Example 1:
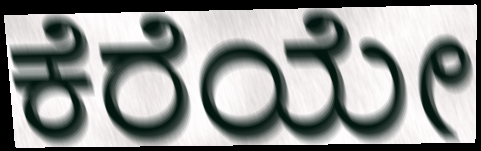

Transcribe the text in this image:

ಕೆರೆಯೇ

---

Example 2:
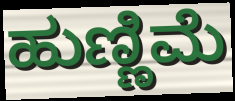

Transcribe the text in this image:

ಹುಣ್ಣಿಮೆ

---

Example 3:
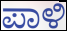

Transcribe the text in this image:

ಪಾಳಿ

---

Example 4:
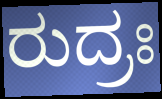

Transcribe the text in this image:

ರುದ್ರಃ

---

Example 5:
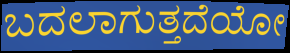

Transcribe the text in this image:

ಬದಲಾಗುತ್ತದೆಯೋ